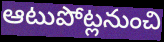
ఆటుపోట్లనుంచి